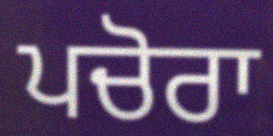
ਪਚੋਰਾ